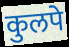
कुलपे